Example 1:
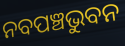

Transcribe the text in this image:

ନବପଞ୍ଚଭୁବନ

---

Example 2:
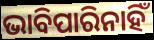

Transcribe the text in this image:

ଭାବିପାରିନାହିଁ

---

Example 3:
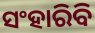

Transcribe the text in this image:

ସଂହାରିବି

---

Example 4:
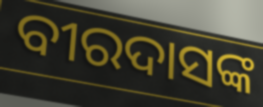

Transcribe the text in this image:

ବୀରଦାସଙ୍କ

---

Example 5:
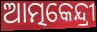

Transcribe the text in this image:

ଆତ୍ମକେନ୍ଦ୍ରୀ